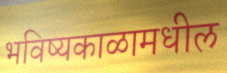
भविष्यकाळामधील